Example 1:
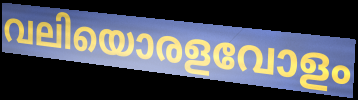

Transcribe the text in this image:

വലിയൊരളവോളം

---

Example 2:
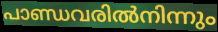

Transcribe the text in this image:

പാണ്ഡവരിൽനിന്നും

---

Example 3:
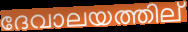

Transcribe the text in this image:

ദേവാലയത്തില്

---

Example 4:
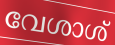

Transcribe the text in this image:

വേശാശ്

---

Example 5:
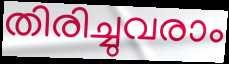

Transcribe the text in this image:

തിരിച്ചുവരാം